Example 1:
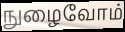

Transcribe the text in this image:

நுழைவோம்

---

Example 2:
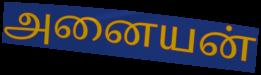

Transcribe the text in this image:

அனையன்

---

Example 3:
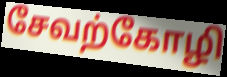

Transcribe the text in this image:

சேவற்கோழி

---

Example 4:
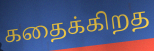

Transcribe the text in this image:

கதைக்கிறத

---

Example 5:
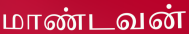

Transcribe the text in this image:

மாண்டவன்